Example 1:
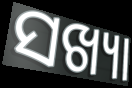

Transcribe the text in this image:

ସଖ୍ୟା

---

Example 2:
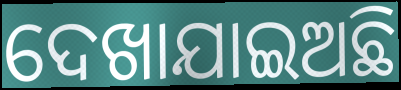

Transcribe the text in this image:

ଦେଖାଯାଇଅଛି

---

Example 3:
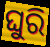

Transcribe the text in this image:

ଘୁରି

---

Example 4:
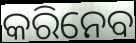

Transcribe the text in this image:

କରିନେବ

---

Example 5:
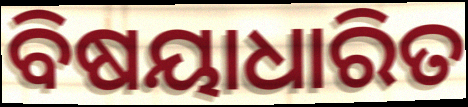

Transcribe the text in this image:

ବିଷୟାଧାରିତ